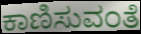
ಕಾಣಿಸುವಂತೆ